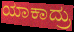
ಯಾಕಾದ್ರು